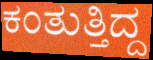
ಕಂತುತ್ತಿದ್ದ